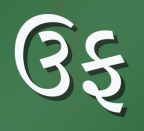
ઉફ